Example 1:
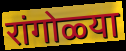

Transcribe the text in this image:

रांगोळ्या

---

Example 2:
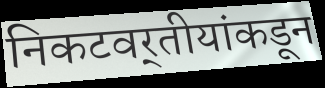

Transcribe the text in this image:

निकटवर्तीयांकडून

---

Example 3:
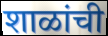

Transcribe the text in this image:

शाळांची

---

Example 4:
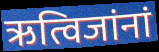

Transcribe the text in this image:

ऋत्विजांनां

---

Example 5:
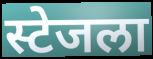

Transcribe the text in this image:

स्टेजला